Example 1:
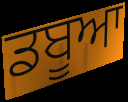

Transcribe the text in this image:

ਡਬੂਆ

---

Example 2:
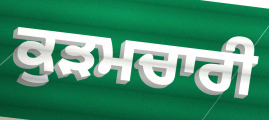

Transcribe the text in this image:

ਕੁੜਮਚਾਰੀ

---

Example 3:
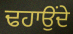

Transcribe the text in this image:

ਢਹਾਉਂਦੇ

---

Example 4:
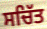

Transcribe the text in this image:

ਸਚਿੱਤ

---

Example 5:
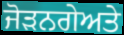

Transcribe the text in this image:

ਜੋੜਨਗੇਅਤੇ